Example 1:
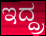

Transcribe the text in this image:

ಇದ್ದ್ರ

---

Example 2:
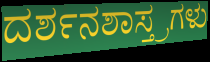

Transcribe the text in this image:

ದರ್ಶನಶಾಸ್ತ್ರಗಳು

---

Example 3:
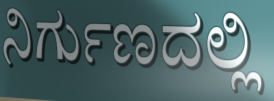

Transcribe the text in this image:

ನಿರ್ಗುಣದಲ್ಲಿ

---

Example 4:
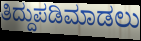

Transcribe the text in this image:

ತಿದ್ದುಪಡಿಮಾಡಲು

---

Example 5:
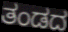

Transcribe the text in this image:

ತಂಡದ